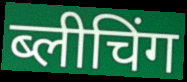
ब्लीचिंग